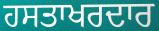
ਹਸਤਾਖਰਦਾਰ